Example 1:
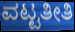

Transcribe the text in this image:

ವಟ್ಟತೀತಿ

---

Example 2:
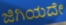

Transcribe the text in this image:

ಜಿಗಿಯದೇ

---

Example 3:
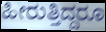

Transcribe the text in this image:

ಹೀರುತ್ತಿದ್ದರೂ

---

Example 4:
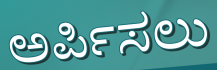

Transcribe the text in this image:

ಅರ್ಪಿಸಲು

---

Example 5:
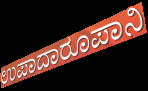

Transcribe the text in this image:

ಉಪಾದಾರೂಪಾನಿ